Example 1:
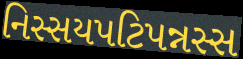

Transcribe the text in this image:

નિસ્સયપટિપન્નસ્સ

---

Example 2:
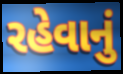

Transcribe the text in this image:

રહેવાનું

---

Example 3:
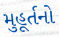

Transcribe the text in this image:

મુહૂર્તનો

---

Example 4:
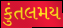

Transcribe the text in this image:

કુંતલમય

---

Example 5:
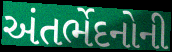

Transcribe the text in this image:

અંતર્ભેદનોની